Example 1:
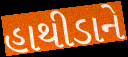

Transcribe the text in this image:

હાથીડાને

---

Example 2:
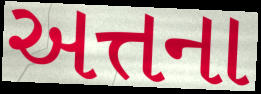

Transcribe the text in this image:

અત્તના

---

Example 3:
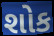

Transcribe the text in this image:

શોક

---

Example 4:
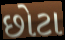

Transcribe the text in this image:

છોટા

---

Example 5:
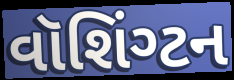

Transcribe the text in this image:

વૉશિંગ્ટન